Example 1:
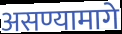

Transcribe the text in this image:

असण्यामागे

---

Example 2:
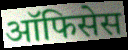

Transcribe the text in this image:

ऑफिसेस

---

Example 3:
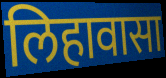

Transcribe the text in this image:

लिहावासा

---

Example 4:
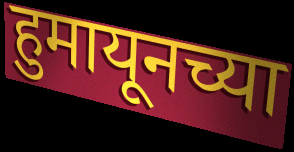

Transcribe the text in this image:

हुमायूनच्या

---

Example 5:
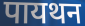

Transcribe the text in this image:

पायथन